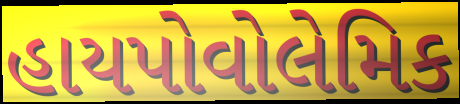
હાયપોવોલેમિક